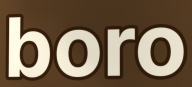
boro